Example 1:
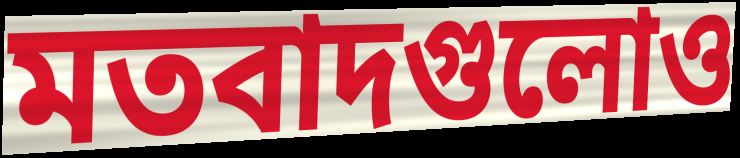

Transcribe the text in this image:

মতবাদগুলোও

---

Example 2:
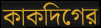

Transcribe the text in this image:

কাকদিগের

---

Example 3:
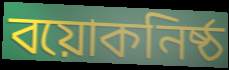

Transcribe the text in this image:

বয়োকনিষ্ঠ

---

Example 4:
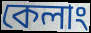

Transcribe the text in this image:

কেলাং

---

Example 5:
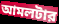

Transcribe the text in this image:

আমলটার